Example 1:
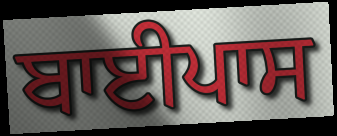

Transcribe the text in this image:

ਬਾਈਪਾਸ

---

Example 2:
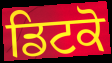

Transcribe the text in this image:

ਡਿਟਕੋ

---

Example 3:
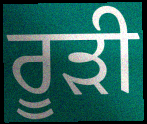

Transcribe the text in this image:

ਰੂੜੀ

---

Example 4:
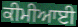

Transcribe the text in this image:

ਕੀਮੀਆਈ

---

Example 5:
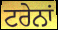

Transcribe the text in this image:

ਟਰੇਨਾਂ